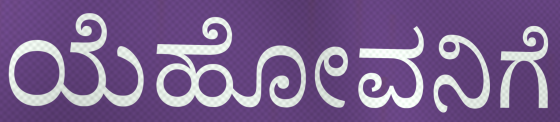
ಯೆಹೋವನಿಗೆ